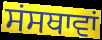
ਸਂਸਥਾਵਾਂ